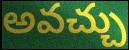
అవచ్చు